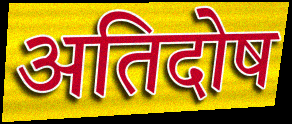
अतिदोष